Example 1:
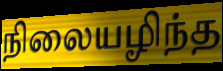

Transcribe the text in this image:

நிலையழிந்த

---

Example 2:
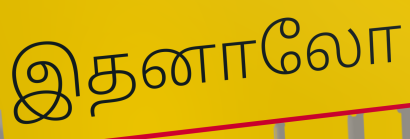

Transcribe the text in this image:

இதனாலோ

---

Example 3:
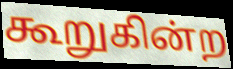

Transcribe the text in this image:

கூறுகின்ற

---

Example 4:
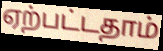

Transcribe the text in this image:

ஏற்பட்டதாம்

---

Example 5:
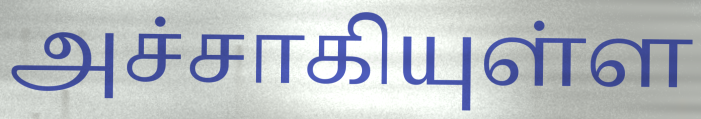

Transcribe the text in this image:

அச்சாகியுள்ள